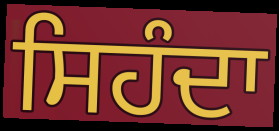
ਸਿਹੰਦਾ